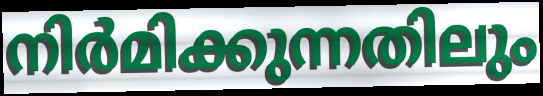
നിർമിക്കുന്നതിലും